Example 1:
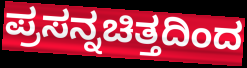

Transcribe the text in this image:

ಪ್ರಸನ್ನಚಿತ್ತದಿಂದ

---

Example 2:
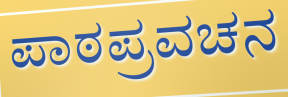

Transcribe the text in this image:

ಪಾಠಪ್ರವಚನ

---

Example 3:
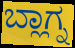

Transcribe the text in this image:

ಬ್ಲಾಗ್ನ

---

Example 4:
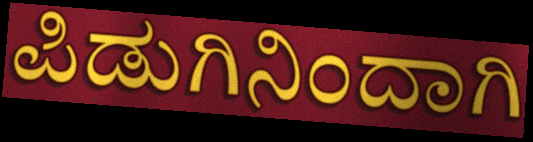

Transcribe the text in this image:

ಪಿಡುಗಿನಿಂದಾಗಿ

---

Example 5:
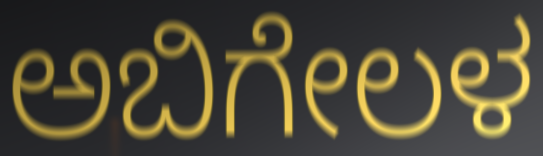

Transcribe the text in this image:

ಅಬಿಗೇಲಳ